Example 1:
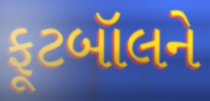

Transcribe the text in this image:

ફૂટબૉલને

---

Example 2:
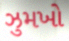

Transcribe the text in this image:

ઝુમખો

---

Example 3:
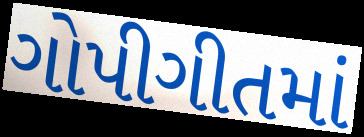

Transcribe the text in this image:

ગોપીગીતમાં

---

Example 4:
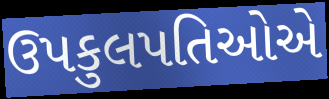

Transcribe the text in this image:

ઉપકુલપતિઓએ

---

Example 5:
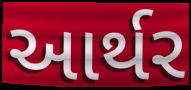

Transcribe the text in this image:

આર્થર